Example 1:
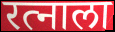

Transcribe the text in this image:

रत्नाला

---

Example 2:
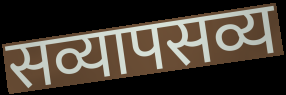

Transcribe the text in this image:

सव्यापसव्य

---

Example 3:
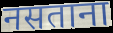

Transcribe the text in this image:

नसताना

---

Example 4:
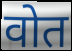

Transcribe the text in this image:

वोत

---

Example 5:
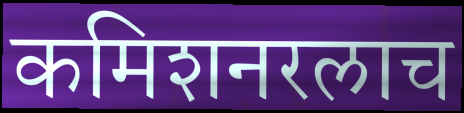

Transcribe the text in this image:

कमिशनरलाच